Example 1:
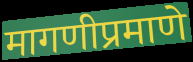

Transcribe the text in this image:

मागणीप्रमाणे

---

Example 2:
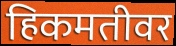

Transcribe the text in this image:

हिकमतीवर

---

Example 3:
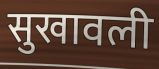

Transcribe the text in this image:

सुखावली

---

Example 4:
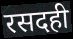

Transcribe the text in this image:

रसदही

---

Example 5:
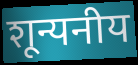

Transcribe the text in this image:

शून्यनीय